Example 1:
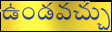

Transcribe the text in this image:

ఉండవచ్చు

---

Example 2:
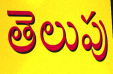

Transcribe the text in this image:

తెలుపు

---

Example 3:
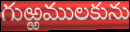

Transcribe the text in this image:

గుఱ్ఱములకును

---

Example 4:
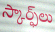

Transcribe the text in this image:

స్కార్ఫ్‌లు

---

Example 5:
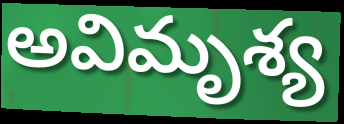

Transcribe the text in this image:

అవిమృశ్య